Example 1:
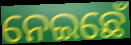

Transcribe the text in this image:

ନେଇଛେଁ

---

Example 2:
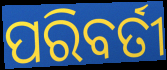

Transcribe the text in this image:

ପରିବର୍ତୀ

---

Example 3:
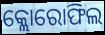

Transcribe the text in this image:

କ୍ଲୋରୋଫିଲ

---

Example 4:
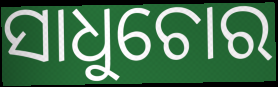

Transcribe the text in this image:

ସାଧୁଚୋର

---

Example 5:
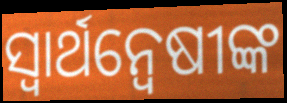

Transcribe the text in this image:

ସ୍ୱାର୍ଥନ୍ୱେଷୀଙ୍କ